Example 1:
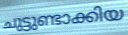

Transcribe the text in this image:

ചുട്ടുണ്ടാക്കിയ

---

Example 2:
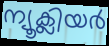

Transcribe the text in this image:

ന്യൂക്ലിയർ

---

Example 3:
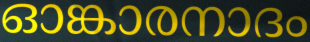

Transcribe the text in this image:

ഓങ്കാരനാദം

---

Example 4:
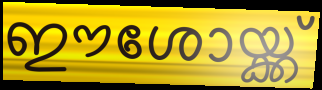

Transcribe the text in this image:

ഈശോയ്ക്ക്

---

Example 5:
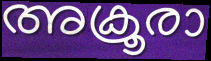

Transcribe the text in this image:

അക്രൂരാ